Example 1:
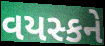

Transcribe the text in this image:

વયસ્કને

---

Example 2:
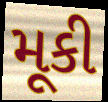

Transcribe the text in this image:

મૂકી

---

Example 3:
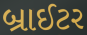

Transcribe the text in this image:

બ્રાઈટર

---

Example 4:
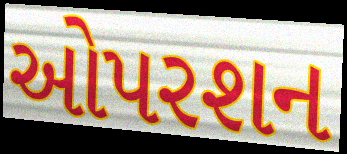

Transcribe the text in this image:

ઓપરશન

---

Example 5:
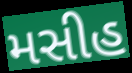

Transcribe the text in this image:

મસીહ